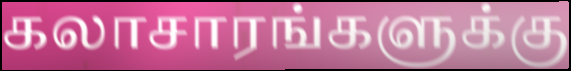
கலாசாரங்களுக்கு